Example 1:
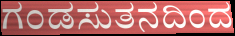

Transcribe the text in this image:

ಗಂಡಸುತನದಿಂದ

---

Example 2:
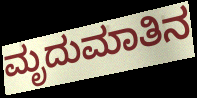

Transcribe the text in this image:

ಮೃದುಮಾತಿನ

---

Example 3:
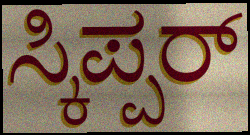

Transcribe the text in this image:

ಸ್ಕಿಪ್ಪರ್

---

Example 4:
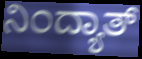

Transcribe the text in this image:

ನಿಂದ್ಯಾತ್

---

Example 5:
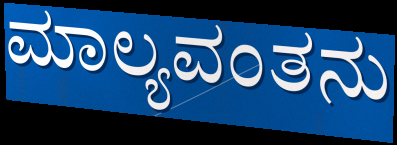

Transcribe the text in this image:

ಮಾಲ್ಯವಂತನು